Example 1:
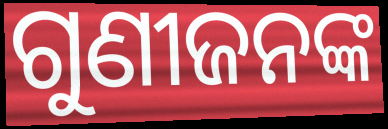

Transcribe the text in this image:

ଗୁଣୀଜନଙ୍କ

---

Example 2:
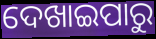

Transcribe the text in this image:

ଦେଖାଇପାରୁ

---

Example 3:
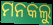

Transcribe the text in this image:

ମନକଲୁ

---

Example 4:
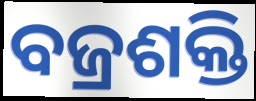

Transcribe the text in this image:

ବଜ୍ରଶକ୍ତି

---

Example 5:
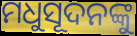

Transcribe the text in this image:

ମଧୁସୂଦନଙ୍କୁ